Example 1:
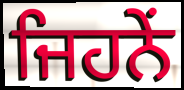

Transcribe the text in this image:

ਜਿਹਨੇਂ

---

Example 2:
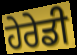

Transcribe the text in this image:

ਹੇਰੇਡੀ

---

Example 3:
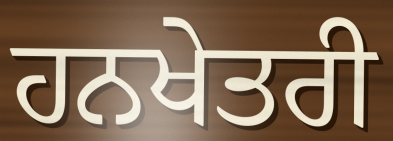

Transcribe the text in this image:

ਹਨਖੇਤਰੀ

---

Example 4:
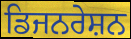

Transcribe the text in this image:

ਡਿਜਨਰੇਸ਼ਨ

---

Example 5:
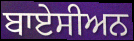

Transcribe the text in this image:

ਬਾਏਸੀਅਨ